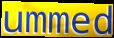
ummed